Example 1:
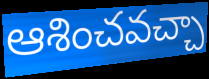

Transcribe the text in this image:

ఆశించవచ్చా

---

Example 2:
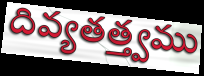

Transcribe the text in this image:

దివ్యతత్త్వము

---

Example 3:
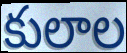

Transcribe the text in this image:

కులాల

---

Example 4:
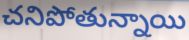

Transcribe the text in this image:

చనిపోతున్నాయి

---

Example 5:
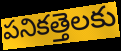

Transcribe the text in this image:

పనికత్తెలకు